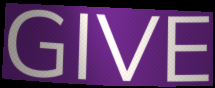
GIVE